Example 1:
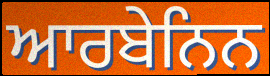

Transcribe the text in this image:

ਆਰਬੇਨਿਨ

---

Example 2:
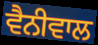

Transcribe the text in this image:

ਵੈਨੀਵਾਲ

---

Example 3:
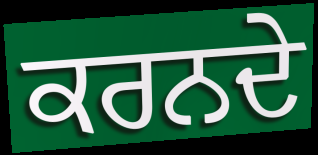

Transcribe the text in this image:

ਕਰਨਦੇ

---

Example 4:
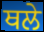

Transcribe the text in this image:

ਥਲੇ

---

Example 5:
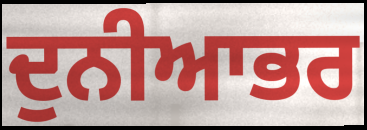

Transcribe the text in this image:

ਦੁਨੀਆਭਰ